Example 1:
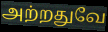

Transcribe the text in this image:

அற்றதுவே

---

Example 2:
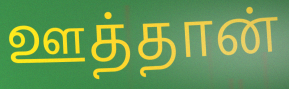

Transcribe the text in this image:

ஊத்தான்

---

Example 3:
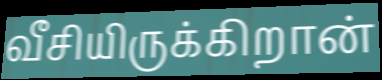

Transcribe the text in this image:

வீசியிருக்கிறான்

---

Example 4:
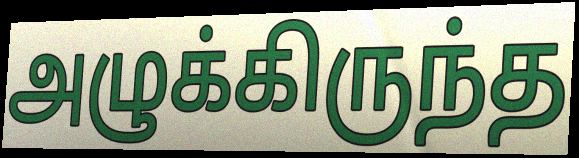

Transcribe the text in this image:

அழுக்கிருந்த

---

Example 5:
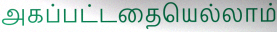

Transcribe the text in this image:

அகப்பட்டதையெல்லாம்